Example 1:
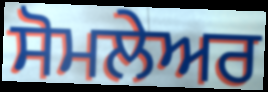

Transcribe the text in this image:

ਸੋਮਲੇਅਰ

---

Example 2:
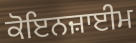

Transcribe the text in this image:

ਕੋਇਨਜ਼ਾਈਮ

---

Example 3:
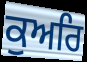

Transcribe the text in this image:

ਕੁਅਰਿ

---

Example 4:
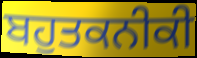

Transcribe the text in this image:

ਬਹੁਤਕਨੀਕੀ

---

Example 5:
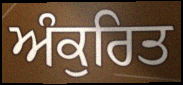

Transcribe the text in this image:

ਅੰਕੁਰਿਤ